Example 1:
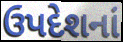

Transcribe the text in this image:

ઉપદેશનાં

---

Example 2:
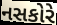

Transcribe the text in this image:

નસકોરે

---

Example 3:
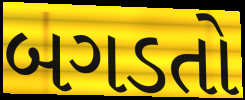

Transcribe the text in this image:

બગડતો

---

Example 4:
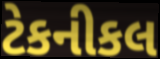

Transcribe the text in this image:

ટેકનીકલ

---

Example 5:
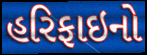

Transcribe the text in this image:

હરિફાઇનો